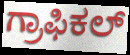
ಗ್ರಾಫಿಕಲ್